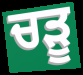
ਚੜੂ